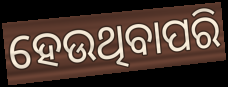
ହେଉଥିବାପରି